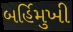
બર્હિમુખી